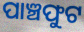
ପାଞ୍ଚଫୁଟ